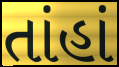
તાંહાં